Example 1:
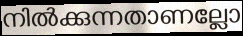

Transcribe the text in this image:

നിൽക്കുന്നതാണല്ലോ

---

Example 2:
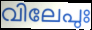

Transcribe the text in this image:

വിലേപുഃ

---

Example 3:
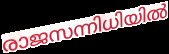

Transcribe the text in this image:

രാജസന്നിധിയിൽ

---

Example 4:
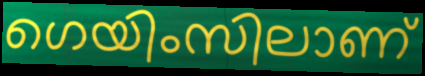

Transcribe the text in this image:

ഗെയിംസിലാണ്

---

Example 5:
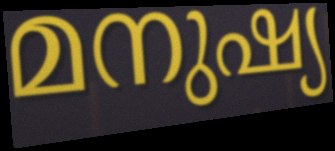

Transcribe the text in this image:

മനുഷ്യ